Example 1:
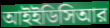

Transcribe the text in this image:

আইইডিসিআর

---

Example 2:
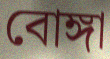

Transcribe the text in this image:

বোঙ্গা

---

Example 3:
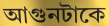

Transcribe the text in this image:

আগুনটাকে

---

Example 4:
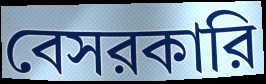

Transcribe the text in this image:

বেসরকারি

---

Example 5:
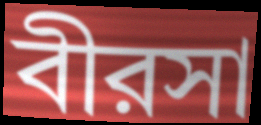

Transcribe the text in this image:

বীরসা